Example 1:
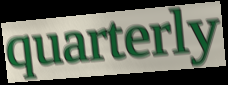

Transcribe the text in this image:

quarterly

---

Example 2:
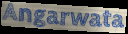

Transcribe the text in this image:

Angarwata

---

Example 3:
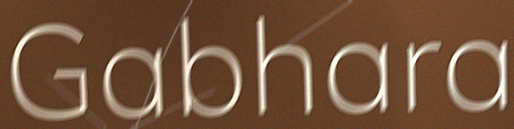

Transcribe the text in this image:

Gabhara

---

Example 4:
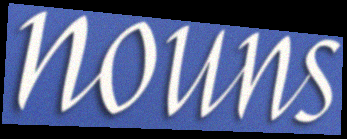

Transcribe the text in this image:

nouns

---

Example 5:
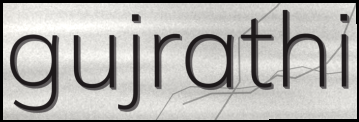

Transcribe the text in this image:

gujrathi